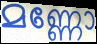
മണ്ണോ